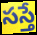
సస్తే